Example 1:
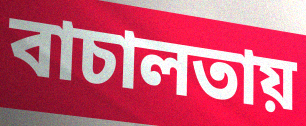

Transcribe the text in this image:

বাচালতায়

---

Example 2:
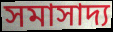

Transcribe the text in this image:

সমাসাদ্য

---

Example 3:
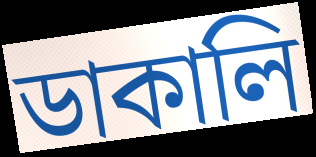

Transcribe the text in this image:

ডাকালি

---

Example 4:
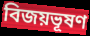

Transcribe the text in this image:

বিজয়ভূষণ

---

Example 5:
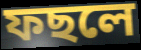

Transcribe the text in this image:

ফছলে